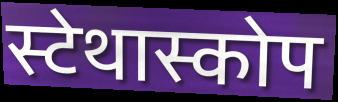
स्टेथास्कोप